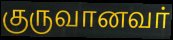
குருவானவர்